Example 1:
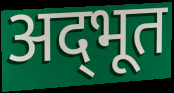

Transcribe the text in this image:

अद्‌भूत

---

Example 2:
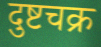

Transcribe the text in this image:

दुष्टचक्र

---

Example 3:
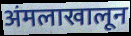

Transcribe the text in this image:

अंमलाखालून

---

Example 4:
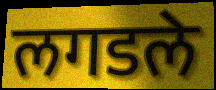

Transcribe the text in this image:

लगडले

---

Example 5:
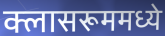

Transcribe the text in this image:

क्लासरूममध्ये